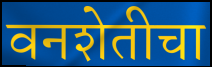
वनशेतीचा